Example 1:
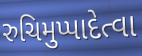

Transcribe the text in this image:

રુચિમુપ્પાદેત્વા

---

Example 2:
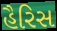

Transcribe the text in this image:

હૈરિસ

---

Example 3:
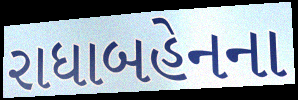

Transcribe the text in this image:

રાધાબહેનના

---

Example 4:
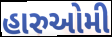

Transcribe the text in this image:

હારુઓમી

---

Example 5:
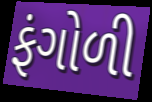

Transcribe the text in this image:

ફંગોળી